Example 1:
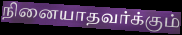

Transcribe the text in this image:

நினையாதவர்க்கும்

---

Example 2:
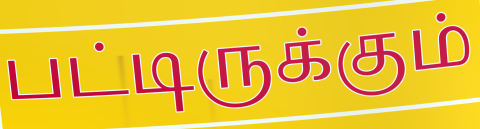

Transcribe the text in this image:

பட்டிருக்கும்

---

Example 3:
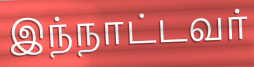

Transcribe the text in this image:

இந்நாட்டவர்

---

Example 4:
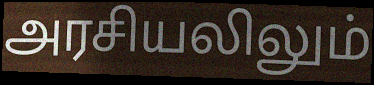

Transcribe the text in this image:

அரசியலிலும்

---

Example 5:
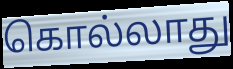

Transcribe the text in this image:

கொல்லாது